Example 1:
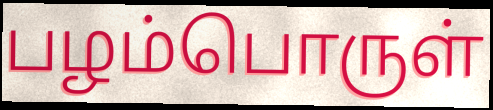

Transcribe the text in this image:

பழம்பொருள்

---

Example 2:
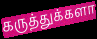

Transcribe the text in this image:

கருத்துக்களா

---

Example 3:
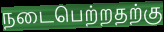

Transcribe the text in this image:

நடைபெற்றதற்கு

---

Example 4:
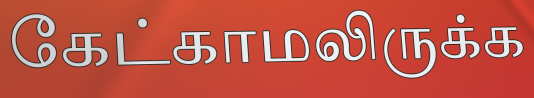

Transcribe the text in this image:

கேட்காமலிருக்க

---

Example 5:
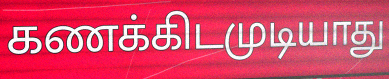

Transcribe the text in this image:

கணக்கிடமுடியாது